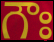
గౌః